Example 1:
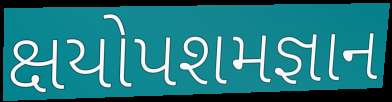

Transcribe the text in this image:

ક્ષયોપશમજ્ઞાન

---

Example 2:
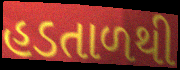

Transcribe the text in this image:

હડતાળથી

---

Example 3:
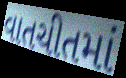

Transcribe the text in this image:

વાતચીતમાં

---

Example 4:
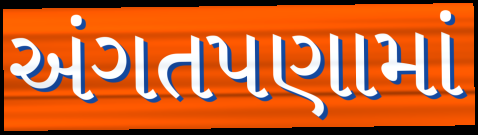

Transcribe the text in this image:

અંગતપણામાં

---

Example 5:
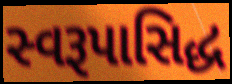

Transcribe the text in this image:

સ્વરૂપાસિદ્ધ